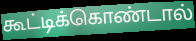
கூட்டிக்கொண்டால்